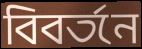
বিবর্তনে